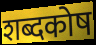
शब्दकोष